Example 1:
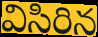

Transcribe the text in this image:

విసిరిన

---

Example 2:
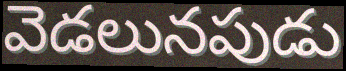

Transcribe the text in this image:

వెడలునపుడు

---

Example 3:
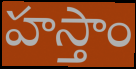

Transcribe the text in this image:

హస్తాం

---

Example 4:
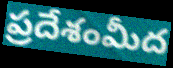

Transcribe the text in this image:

ప్రదేశంమీద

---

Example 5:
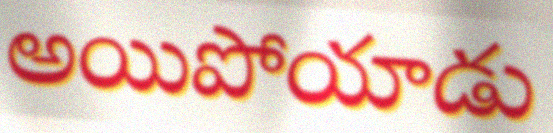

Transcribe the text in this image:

అయిపోయాడు